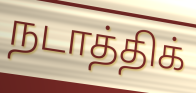
நடாத்திக்